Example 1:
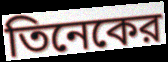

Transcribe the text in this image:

তিনেকের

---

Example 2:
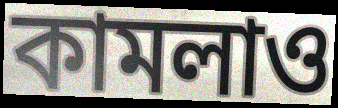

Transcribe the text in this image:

কামলাও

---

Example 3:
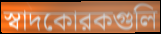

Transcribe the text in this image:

স্বাদকোরকগুলি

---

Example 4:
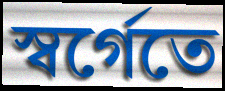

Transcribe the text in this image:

স্বর্গেতে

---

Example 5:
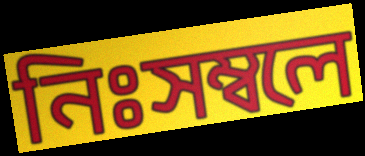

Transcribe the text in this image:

নিঃসম্বলে